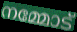
നമ്മോട്